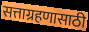
सत्ताग्रहणासाठी